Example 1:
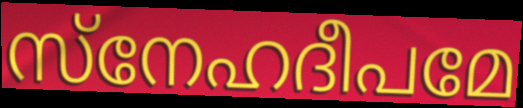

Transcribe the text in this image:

സ്നേഹദീപമേ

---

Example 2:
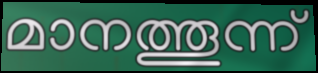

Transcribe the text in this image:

മാനത്തൂന്ന്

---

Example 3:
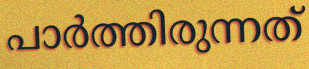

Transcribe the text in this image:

പാർത്തിരുന്നത്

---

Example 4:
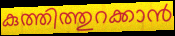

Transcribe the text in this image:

കുത്തിത്തുറക്കാൻ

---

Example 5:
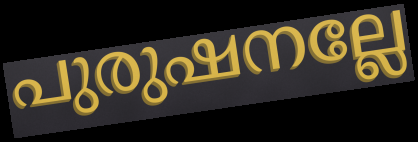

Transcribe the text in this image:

പുരുഷനല്ലേ